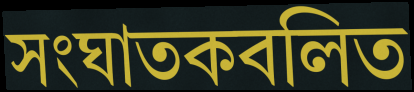
সংঘাতকবলিত